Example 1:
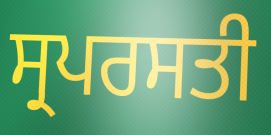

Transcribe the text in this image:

ਸ੍ਰਪਰਸਤੀ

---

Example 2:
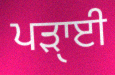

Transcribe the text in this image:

ਪੜਾੑਈ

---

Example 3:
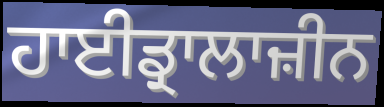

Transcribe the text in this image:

ਹਾਈਡ੍ਰਾਲਾਜ਼ੀਨ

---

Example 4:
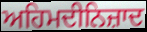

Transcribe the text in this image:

ਅਹਿਮਦੀਨਿਜ਼ਾਦ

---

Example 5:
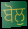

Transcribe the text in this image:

ਬੋਲੁ